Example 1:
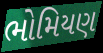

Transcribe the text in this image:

ભોમિયણ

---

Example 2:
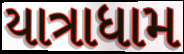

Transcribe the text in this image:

યાત્રાધામ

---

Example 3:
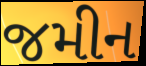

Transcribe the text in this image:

જમીન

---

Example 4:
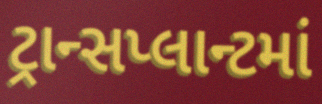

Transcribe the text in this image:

ટ્રાન્સપ્લાન્ટમાં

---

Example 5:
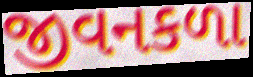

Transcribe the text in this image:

જીવનકળા